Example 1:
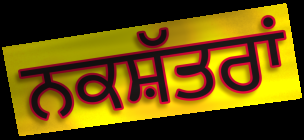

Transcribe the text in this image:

ਨਕਸ਼ੱਤਰਾਂ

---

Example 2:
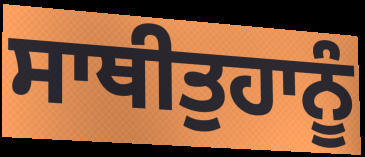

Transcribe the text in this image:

ਸਾਥੀਤੁਹਾਨੂੰ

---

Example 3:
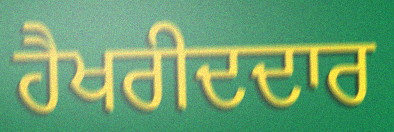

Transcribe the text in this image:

ਹੈਖਰੀਦਦਾਰ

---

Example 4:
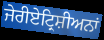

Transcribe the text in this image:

ਜੇਰੀਏਟ੍ਰਿਸ਼ੀਅਨਾਂ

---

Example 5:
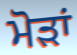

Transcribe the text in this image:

ਮੋੜਾਂ